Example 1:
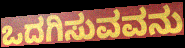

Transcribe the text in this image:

ಒದಗಿಸುವವನು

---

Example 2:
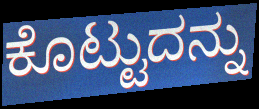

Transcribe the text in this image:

ಕೊಟ್ಟುದನ್ನು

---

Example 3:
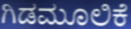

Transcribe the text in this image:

ಗಿಡಮೂಲಿಕೆ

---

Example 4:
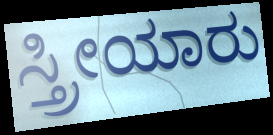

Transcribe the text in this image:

ಸ್ತ್ರೀಯಾರು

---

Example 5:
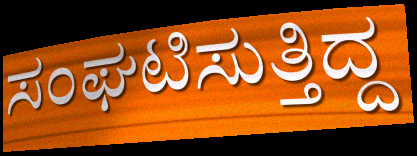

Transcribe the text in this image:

ಸಂಘಟಿಸುತ್ತಿದ್ದ